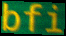
bfi